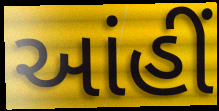
આંહીં